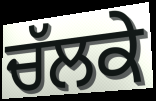
ਚੱਲਕੇ